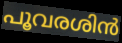
പൂവരശിൻ